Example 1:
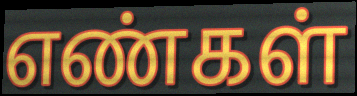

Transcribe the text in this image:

எண்கள்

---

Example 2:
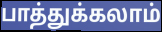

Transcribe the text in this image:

பாத்துக்கலாம்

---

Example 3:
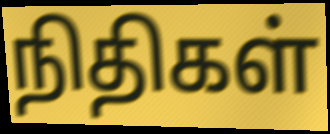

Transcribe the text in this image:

நிதிகள்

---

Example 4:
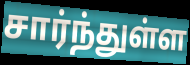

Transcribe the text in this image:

சார்ந்துள்ள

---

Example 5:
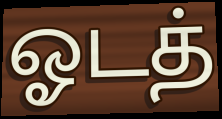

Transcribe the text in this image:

ஓடத்